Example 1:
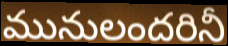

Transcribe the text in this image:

మునులందరినీ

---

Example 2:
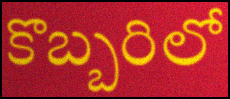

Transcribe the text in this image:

కొబ్బరిలో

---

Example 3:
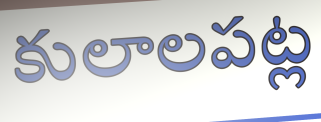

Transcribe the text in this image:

కులాలపట్ల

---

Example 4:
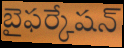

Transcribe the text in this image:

బైఫర్కేషన్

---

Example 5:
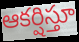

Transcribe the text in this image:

ఆకర్షిస్తూ